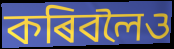
কৰিবলৈও